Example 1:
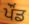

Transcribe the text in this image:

ਪੌਂਡ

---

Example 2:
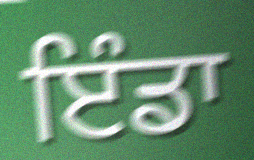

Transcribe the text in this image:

ਇੰਡਾ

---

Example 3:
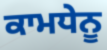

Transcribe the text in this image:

ਕਾਮਧੇਨੂ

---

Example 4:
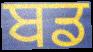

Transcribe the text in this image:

ਬਡ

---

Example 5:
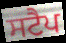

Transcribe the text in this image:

ਸਟੈਪ